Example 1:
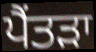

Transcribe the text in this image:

ਪੈਂਤੜਾ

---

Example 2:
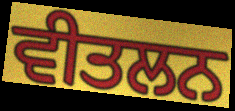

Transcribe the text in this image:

ਵੀਤਲਨ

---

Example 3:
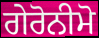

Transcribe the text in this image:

ਗੇਰੋਨੀਮੋ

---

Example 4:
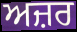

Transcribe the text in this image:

ਅਜ਼ਰ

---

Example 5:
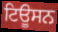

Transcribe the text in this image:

ਟਿਊਸਨ